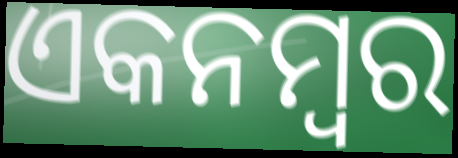
ଏକନମ୍ବର